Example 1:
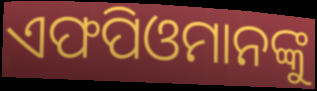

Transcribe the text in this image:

ଏଫପିଓମାନଙ୍କୁ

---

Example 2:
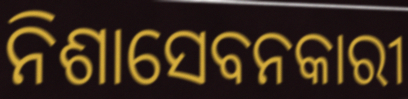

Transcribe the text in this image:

ନିଶାସେବନକାରୀ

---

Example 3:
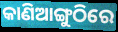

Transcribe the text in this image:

କାଣିଆଙ୍ଗୁଠିରେ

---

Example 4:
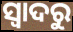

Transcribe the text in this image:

ସ୍ୱାଦରୁ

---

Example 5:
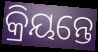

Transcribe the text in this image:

କ୍ରିୟନ୍ତେ